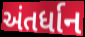
અંતર્ધાન